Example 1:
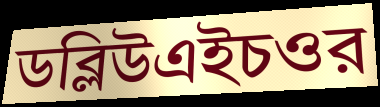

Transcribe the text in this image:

ডব্লিউএইচওর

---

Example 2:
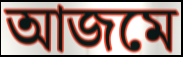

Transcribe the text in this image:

আজমে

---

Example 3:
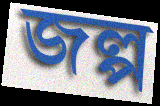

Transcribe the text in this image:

জল্প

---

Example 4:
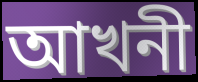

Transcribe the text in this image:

আখনী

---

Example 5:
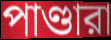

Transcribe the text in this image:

পাণ্ডারা